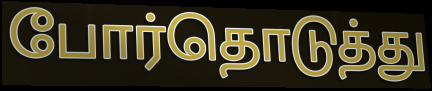
போர்தொடுத்து